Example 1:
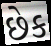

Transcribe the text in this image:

છેક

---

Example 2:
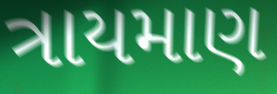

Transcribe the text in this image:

ત્રાયમાણ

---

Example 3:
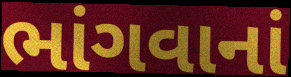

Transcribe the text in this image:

ભાંગવાનાં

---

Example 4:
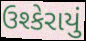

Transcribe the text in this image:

ઉશ્કેરાયું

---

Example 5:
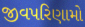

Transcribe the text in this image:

જીવપરિણામો